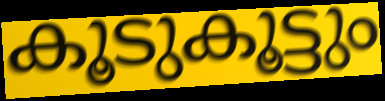
കൂടുകൂട്ടും